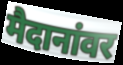
मैदानांवर